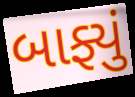
બાફ્યું